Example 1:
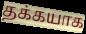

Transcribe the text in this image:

தக்கயாக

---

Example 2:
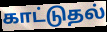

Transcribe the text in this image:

காட்டுதல்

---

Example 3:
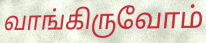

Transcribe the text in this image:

வாங்கிருவோம்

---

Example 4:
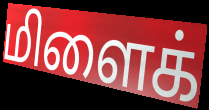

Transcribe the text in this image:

மிளைக்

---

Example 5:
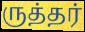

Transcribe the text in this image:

ருத்தர்